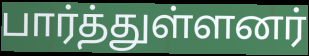
பார்த்துள்ளனர்